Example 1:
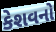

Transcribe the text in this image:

કેશવનો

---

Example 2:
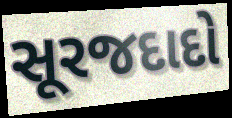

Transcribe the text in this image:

સૂરજદાદો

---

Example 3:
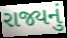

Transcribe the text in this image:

રાજ્યનું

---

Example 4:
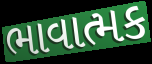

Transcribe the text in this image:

ભાવાત્મક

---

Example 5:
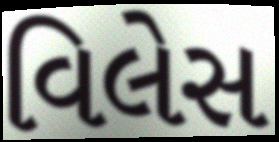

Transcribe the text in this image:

વિલેસ